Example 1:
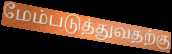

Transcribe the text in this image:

மேம்படுத்துவதற்கு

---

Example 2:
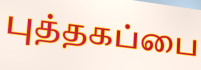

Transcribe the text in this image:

புத்தகப்பை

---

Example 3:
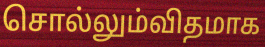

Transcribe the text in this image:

சொல்லும்விதமாக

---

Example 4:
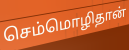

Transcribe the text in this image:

செம்மொழிதான்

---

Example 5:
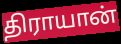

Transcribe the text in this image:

திராயான்